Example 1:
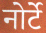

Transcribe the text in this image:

नोर्टे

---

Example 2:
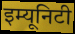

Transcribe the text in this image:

इम्यूनिटी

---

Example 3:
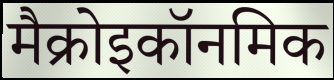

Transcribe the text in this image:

मैक्रोइकॉनमिक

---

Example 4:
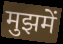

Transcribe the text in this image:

मुझमें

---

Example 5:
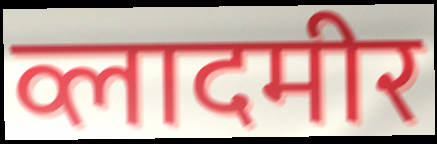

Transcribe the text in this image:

व्लादमीर